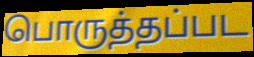
பொருத்தப்பட